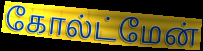
கோல்ட்மேன்